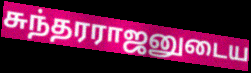
சுந்தரராஜனுடைய